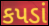
કપડાં